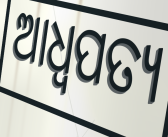
ଆଧ୍ଵପତ୍ୟ